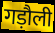
गड़ौली